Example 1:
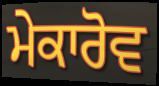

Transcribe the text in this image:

ਮੇਕਾਰੋਵ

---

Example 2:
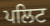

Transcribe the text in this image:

ਪਲਿਟ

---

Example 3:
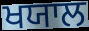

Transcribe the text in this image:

ਖਯਾਲ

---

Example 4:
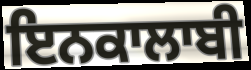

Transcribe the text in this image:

ਇਨਕਾਲਾਬੀ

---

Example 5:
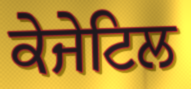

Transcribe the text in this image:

ਕੇਜੇਟਿਲ